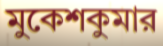
মুকেশকুমার